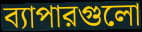
ব্যাপারগুলো